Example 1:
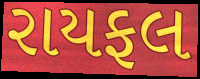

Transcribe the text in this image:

રાયફલ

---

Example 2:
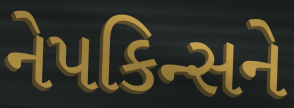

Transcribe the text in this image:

નેપકિન્સને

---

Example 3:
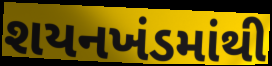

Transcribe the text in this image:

શયનખંડમાંથી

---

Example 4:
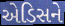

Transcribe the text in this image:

એડિસને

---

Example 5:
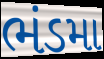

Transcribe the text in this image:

ભંડમા